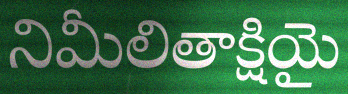
నిమీలితాక్షియై